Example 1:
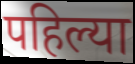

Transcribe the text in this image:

पहिल्या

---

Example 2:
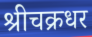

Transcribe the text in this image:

श्रीचक्रधर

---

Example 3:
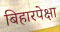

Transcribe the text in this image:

बिहारपेक्षा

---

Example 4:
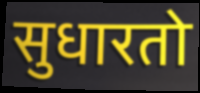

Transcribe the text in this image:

सुधारतो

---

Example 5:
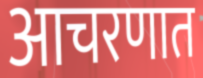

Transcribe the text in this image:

आचरणात